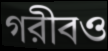
গরীবও